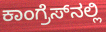
ಕಾಂಗ್ರೆಸ್‍ನಲ್ಲಿ